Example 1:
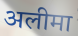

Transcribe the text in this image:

अलीमा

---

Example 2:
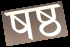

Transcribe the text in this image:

षष्ठ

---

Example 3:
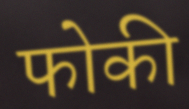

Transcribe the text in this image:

फोकी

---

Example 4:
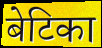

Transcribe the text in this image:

बेटिका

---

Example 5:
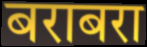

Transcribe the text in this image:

बराबरा